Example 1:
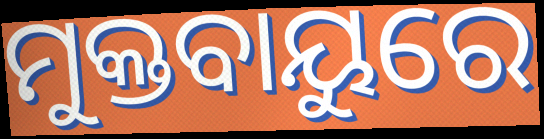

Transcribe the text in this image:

ମୁକ୍ତବାୟୁରେ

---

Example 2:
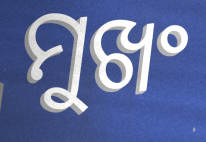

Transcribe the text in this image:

ମୁଖଂ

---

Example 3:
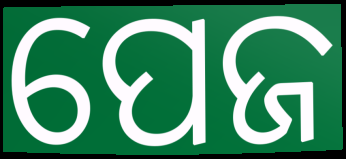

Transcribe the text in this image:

ପେଜ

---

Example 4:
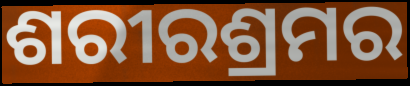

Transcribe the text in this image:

ଶରୀରଶ୍ରମର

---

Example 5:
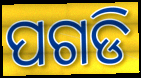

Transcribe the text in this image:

ପଗଡି